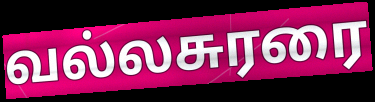
வல்லசுரரை